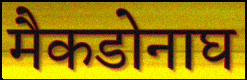
मैकडोनाघ